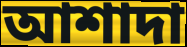
আশাদা